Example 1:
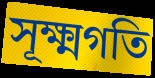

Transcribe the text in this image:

সূক্ষ্মগতি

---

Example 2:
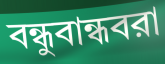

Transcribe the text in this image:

বন্ধুবান্ধবরা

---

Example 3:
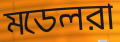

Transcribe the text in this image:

মডেলরা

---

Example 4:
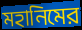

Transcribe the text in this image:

মহানিমের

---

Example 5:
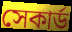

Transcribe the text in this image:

সেকার্ড